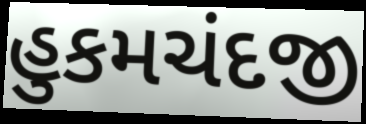
હુકમચંદજી